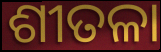
ଶୀତଳା